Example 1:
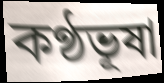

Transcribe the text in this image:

কণ্ঠভূষা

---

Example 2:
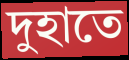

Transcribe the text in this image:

দুহাতে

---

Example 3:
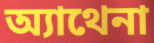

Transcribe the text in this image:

অ্যাথেনা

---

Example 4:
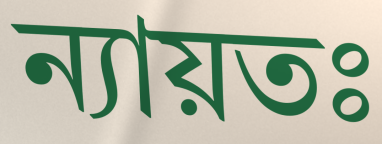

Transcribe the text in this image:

ন্যায়তঃ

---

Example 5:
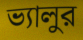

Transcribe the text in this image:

ভ্যালুর